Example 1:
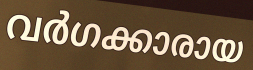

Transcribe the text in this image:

വർഗക്കാരായ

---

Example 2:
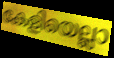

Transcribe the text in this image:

കേളിയെല്ലാ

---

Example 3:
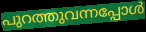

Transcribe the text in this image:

പുറത്തുവന്നപ്പോൾ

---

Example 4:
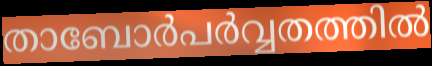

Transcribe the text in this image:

താബോർപർവ്വതത്തിൽ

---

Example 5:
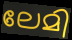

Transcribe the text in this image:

ലേമി